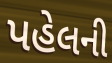
પહેલની